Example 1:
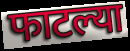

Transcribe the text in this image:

फाटल्या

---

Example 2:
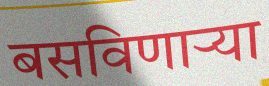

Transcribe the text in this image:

बसविणार्‍या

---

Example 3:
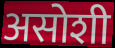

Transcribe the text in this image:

असोशी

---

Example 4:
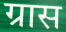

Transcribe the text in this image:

ग्रास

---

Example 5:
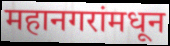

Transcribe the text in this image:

महानगरांमधून